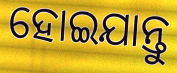
ହୋଇଯାନ୍ତୁ